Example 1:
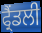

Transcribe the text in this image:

ਫ੍ਰੈਂਡਲੀ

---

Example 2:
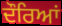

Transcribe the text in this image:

ਦੌਰਿਆਂ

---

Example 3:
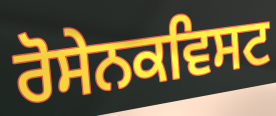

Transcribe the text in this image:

ਰੋਸੇਨਕਵਿਸਟ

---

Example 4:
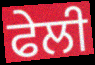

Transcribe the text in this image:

ਫੇਲੀ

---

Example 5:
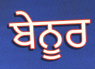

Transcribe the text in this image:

ਬੇਨੂਰ